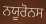
ਨਯੂਰੋਨਸ